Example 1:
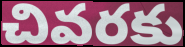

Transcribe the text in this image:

చివరకు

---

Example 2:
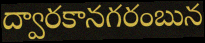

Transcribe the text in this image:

ద్వారకానగరంబున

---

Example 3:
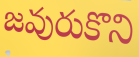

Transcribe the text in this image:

జవురుకొని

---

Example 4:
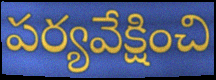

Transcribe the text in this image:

పర్యవేక్షించి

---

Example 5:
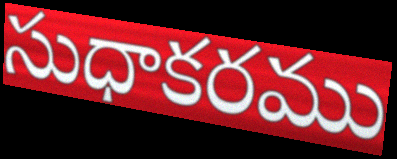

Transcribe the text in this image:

సుధాకరము